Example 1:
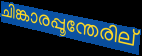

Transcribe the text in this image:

ചിങ്കാരപ്പൂന്തേരില്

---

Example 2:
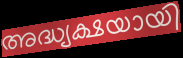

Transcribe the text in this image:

അദ്ധ്യക്ഷയായി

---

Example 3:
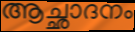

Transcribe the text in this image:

ആച്ഛാദനം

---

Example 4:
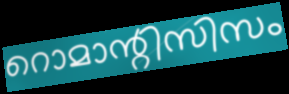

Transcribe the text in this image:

റൊമാന്റിസിസം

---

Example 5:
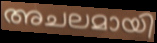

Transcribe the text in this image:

അചലമായി